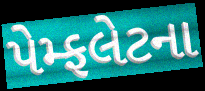
પેમ્ફલેટના